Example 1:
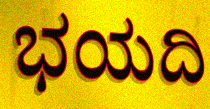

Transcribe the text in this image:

ಭಯದಿ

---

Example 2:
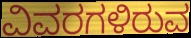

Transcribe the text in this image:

ವಿವರಗಳಿರುವ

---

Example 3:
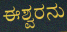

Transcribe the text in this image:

ಈಶ್ವರನು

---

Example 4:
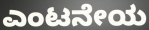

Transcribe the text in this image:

ಎಂಟನೇಯ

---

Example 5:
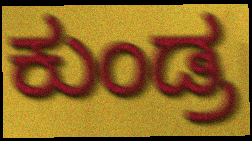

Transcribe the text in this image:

ಕುಂಡ್ರ